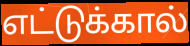
எட்டுக்கால்